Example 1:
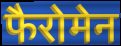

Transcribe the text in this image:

फैरोमेन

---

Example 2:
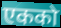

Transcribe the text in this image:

एकको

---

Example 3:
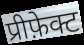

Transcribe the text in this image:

प्रीफ़ेक्ट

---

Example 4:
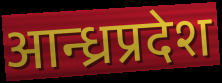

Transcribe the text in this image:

आन्ध्रप्रदेश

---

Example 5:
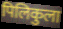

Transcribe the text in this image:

पिलिकुला